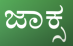
ಜಾಕ್ಸ